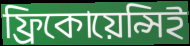
ফ্রিকোয়েন্সিই